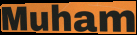
Muham